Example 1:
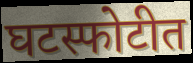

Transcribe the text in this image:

घटस्फोटीत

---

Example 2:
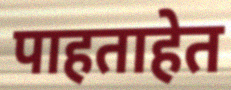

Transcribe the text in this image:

पाहताहेत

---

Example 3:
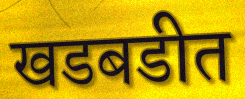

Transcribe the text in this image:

खडबडीत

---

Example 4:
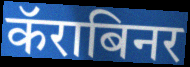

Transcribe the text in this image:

कॅराबिनर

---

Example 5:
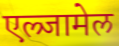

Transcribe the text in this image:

एल्जामेल